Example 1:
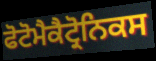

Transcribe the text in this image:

ਫੋਟੋਮੈਕੈਟ੍ਰੋਨਿਕਸ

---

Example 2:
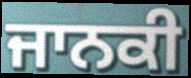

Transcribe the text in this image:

ਜਾਨਕੀ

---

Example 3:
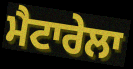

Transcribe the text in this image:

ਮੈਟਾਰੇਲਾ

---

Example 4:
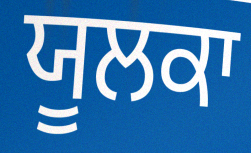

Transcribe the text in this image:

ਯੂਲਕਾ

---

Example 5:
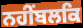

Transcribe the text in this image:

ਨਹੀਂਬਲਕਿ